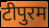
टीपुरम